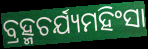
ବ୍ରହ୍ମଚର୍ଯ୍ୟମହିଂସା